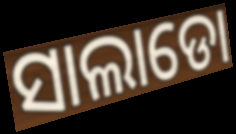
ସାଲାଡୋ